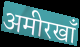
अमीरखाँ